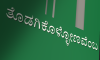
ತೊಡಗಿಕೊಳ್ಳೋಣವೆಂಬ